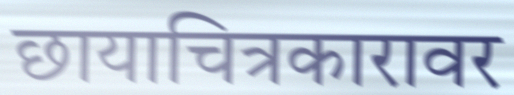
छायाचित्रकारावर